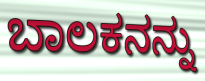
ಬಾಲಕನನ್ನು